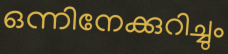
ഒന്നിനേക്കുറിച്ചും